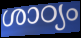
ശാഠ്യം